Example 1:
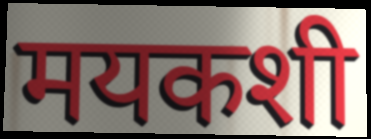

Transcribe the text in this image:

मयकशी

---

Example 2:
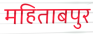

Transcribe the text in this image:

महिताबपुर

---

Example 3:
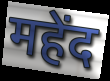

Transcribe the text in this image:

महेंद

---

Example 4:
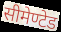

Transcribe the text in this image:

सीमेण्टेड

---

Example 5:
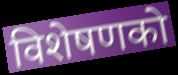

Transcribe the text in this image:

विशेषणको